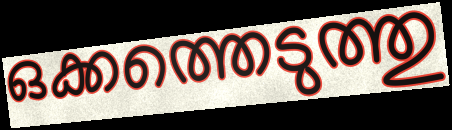
ഒക്കത്തെടുത്തു